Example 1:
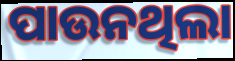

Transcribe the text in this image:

ପାଉନଥିଲା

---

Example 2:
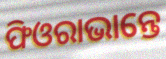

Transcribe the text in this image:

ଫିଓରାଭାନ୍ତେ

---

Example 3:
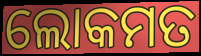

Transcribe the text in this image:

ଲୋକମତ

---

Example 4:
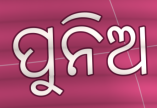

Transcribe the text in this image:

ପୁନିଅ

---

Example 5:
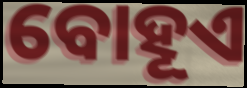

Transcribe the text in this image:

ବୋହୂଏ